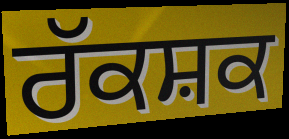
ਰੱਕਸ਼ਕ